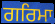
ਗਰਿਮਾ